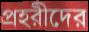
প্রহরীদের